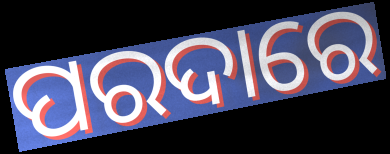
ପରଦାରେ